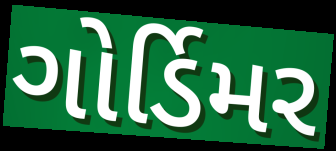
ગોર્ડિમર